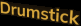
Drumstick